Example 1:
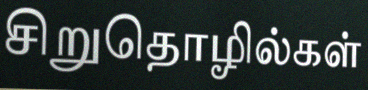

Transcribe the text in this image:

சிறுதொழில்கள்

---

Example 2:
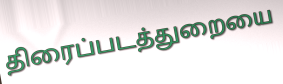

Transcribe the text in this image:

திரைப்படத்துறையை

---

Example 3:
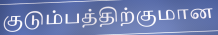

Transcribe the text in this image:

குடும்பத்திற்குமான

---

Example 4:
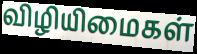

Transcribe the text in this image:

விழியிமைகள்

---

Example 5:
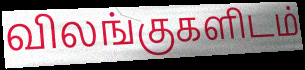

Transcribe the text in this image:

விலங்குகளிடம்